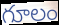
గూలం